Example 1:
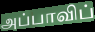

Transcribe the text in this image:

அப்பாவிப்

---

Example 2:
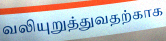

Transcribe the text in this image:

வலியுறுத்துவதற்காக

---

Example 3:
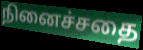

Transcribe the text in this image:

நினைச்சதை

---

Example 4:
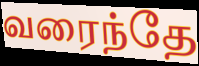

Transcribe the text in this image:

வரைந்தே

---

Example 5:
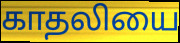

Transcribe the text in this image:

காதலியை